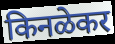
किनळेकर